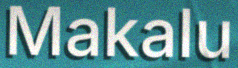
Makalu